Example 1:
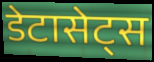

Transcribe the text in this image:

डेटासेट्स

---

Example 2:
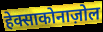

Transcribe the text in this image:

हेक्साकोनाज़ोल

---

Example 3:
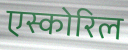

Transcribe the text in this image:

एस्कोरिल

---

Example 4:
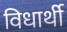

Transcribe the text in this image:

विधार्थी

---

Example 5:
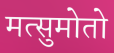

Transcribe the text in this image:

मत्सुमोतो